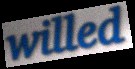
willed